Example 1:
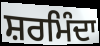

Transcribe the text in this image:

ਸ਼ਰਮਿੰਦਾ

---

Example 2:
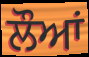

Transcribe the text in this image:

ਲੌਆਂ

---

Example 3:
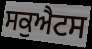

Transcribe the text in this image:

ਸਕੁਐਟਸ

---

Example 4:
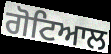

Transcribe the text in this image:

ਗੋਟਿਆਲ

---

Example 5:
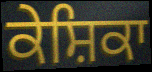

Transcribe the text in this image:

ਕੇਸ਼ਿਕਾ